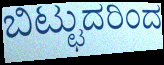
ಬಿಟ್ಟುದರಿಂದ